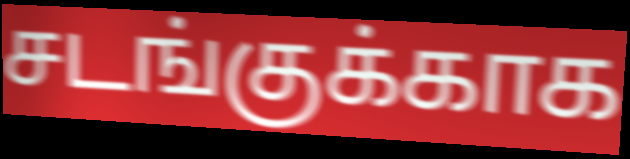
சடங்குக்காக